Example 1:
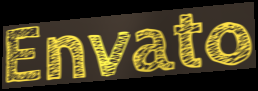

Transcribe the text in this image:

Envato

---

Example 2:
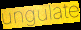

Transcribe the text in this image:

ungulate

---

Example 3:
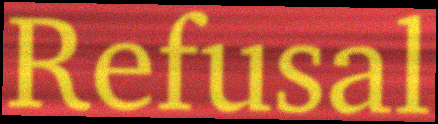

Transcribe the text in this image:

Refusal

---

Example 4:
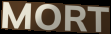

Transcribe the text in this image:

MORT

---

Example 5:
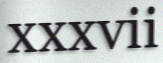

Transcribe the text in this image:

xxxvii